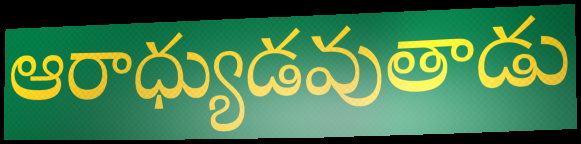
ఆరాధ్యుడవుతాడు